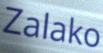
Zalako